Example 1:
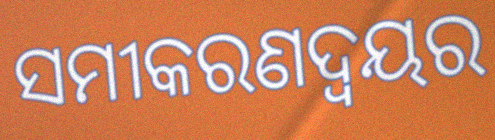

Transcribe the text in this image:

ସମୀକରଣଦ୍ଵୟର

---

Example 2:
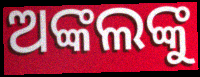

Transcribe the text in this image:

ଅଙ୍କଲଙ୍କୁ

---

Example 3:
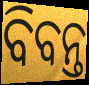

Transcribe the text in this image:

ବିବନ୍ତ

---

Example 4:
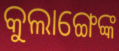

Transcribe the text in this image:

କୁଲାଙ୍ଗେଙ୍କ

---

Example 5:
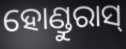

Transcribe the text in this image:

ହୋଣ୍ଡୁରାସ୍